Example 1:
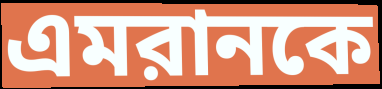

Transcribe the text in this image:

এমরানকে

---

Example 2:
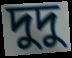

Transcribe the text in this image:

দুদু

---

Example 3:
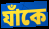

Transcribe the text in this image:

যাঁকে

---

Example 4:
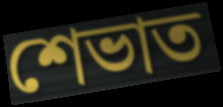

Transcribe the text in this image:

শেভাত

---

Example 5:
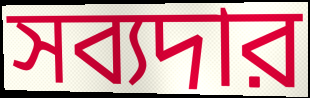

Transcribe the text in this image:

সব্যদার